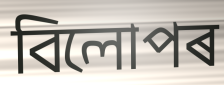
বিলোপৰ